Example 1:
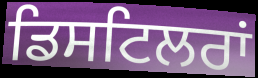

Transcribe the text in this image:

ਡਿਸਟਿਲਰਾਂ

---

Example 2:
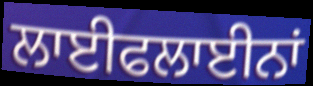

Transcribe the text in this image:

ਲਾਈਫਲਾਈਨਾਂ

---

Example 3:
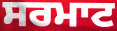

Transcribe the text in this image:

ਸਰਮਾਟ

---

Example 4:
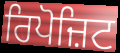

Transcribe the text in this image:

ਰਿਪੋਜ਼ਿਟ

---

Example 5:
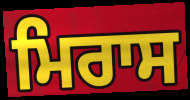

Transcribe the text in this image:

ਮਿਰਾਸ